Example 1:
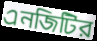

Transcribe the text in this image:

এনজিটির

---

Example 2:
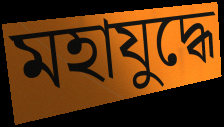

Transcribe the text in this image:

মহাযুদ্ধে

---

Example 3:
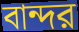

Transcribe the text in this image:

বান্দর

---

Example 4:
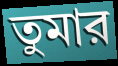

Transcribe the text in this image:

তুমার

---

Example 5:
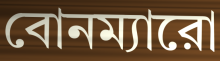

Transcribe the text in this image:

বোনম্যারো